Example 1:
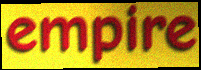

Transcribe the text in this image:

empire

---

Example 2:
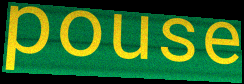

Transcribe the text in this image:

pouse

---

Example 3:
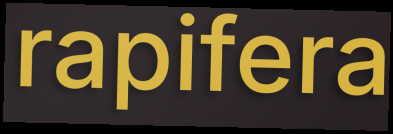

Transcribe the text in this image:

rapifera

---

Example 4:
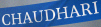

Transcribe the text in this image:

CHAUDHARI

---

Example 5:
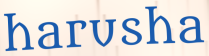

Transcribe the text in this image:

harusha